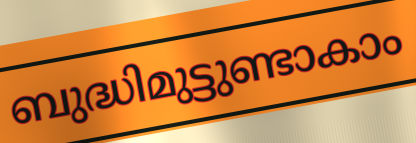
ബുദ്ധിമുട്ടുണ്ടാകാം